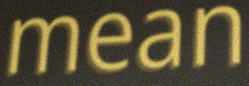
mean